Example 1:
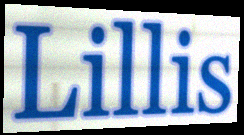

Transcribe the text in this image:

Lillis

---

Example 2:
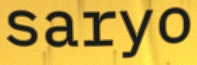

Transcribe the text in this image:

saryo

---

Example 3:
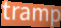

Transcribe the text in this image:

tramp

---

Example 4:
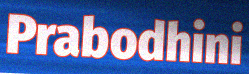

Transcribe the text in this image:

Prabodhini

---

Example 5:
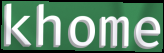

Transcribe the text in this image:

khome